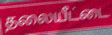
தலையீட்டை